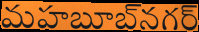
మహబూబ్‌నగర్